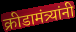
क्रीडामंत्र्यांनी